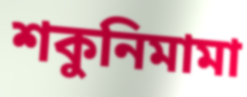
শকুনিমামা